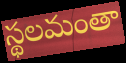
స్థలమంతా